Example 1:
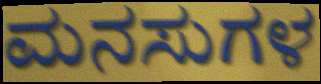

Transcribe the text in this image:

ಮನಸುಗಳ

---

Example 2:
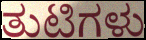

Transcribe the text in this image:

ತುಟಿಗಳು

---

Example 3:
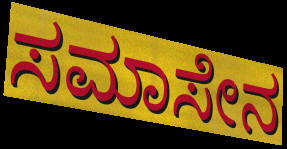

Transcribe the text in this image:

ಸಮಾಸೇನ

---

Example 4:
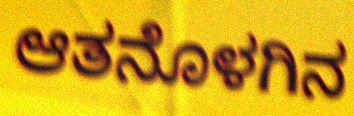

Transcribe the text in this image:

ಆತನೊಳಗಿನ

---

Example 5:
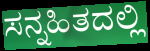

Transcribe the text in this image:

ಸನ್ನಹಿತದಲ್ಲಿ